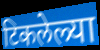
टिकलेल्या